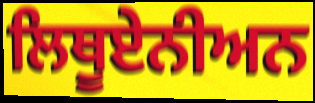
ਲਿਥੂਏਨੀਅਨ